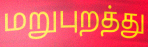
மறுபுறத்து